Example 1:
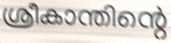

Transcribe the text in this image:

ശ്രീകാന്തിന്റെ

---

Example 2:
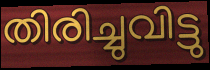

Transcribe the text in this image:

തിരിച്ചുവിട്ടു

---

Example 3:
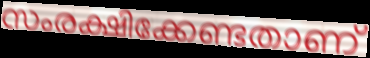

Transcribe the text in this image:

സംരക്ഷിക്കേണ്ടതാണ്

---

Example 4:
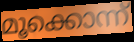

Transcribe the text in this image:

മൂക്കൊന്ന്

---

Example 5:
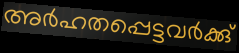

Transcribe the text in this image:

അർഹതപ്പെട്ടവർക്കു്